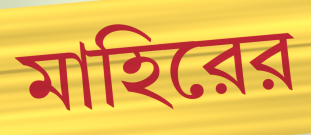
মাহিরের